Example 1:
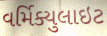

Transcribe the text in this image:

વર્મિક્યુલાઇટ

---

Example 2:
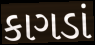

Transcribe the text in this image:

કાગડાં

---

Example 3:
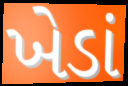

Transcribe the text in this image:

ખેડાં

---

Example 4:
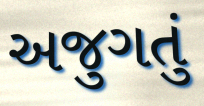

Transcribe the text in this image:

અજુગતું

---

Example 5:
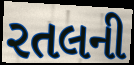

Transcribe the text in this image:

રતલની